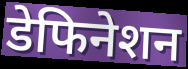
डेफिनेशन